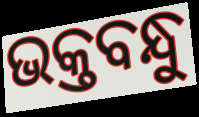
ଭକ୍ତବନ୍ଧୁ